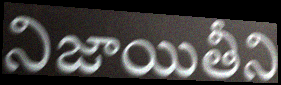
నిజాయితీని